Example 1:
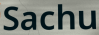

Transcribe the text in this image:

Sachu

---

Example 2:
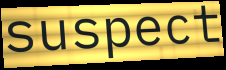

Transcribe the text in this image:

suspect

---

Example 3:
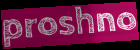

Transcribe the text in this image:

proshno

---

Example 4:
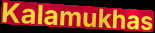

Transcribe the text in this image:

Kalamukhas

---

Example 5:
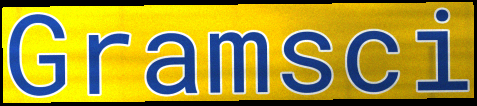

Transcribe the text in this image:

Gramsci